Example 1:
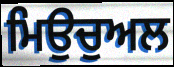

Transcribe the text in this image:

ਮਿਉਚੁਅਲ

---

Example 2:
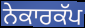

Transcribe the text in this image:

ਨੇਕਾਰਕੱਪ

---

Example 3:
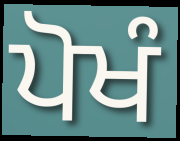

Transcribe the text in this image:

ਪੋਖੰ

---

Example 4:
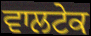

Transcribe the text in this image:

ਵਾਲਟੇਕ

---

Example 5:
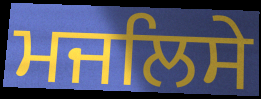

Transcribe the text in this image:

ਮਜਲਿਸੇ